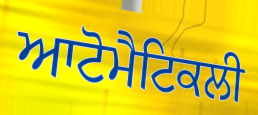
ਆਟੋਮੈਟਿਕਲੀ